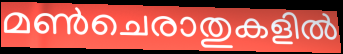
മൺചെരാതുകളിൽ